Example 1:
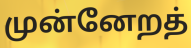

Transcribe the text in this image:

முன்னேறத்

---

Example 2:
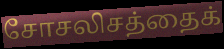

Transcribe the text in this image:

சோசலிசத்தைக்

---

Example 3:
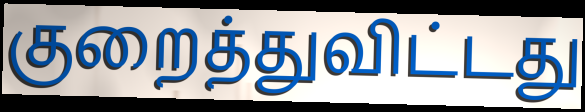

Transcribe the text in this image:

குறைத்துவிட்டது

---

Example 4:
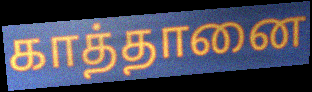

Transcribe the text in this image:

காத்தானை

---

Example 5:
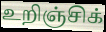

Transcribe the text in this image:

உறிஞ்சிக்